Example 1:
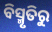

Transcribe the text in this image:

ବିସ୍ମୃତିରୁ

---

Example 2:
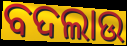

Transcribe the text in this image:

ବଦଲାଉ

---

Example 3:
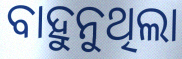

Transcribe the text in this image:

ବାହୁନୁଥିଲା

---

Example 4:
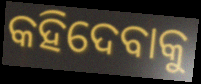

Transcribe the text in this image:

କହିଦେବାକୁ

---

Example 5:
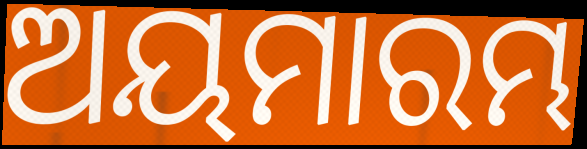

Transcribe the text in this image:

ଅୟମାରମ୍ଭ